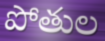
పోతుల